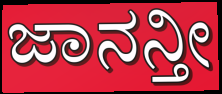
ಜಾನನ್ತೀ